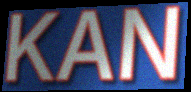
KAN